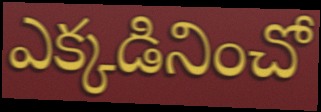
ఎక్కడినించో